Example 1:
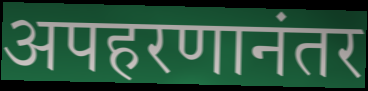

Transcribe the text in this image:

अपहरणानंतर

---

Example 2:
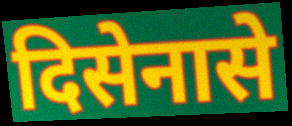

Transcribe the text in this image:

दिसेनासे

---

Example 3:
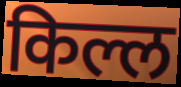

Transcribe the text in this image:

किल्ल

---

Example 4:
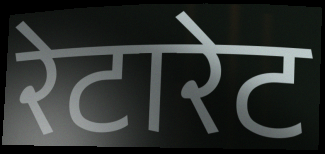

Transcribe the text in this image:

रेटारेट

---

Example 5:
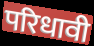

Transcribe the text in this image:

परिधावी